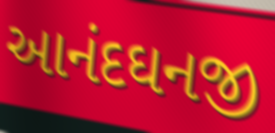
આનંદઘનજી